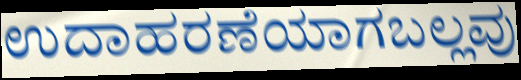
ಉದಾಹರಣೆಯಾಗಬಲ್ಲವು